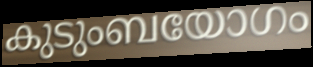
കുടുംബയോഗം